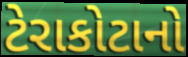
ટેરાકોટાનો